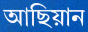
আছিয়ান